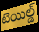
టెయిల్డ్